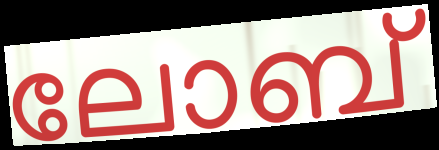
ലോബ്